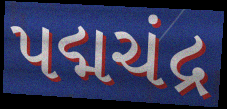
પદ્મચંદ્ર